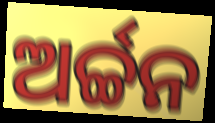
ଅର୍ଚ୍ଚନ